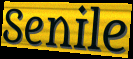
Senile